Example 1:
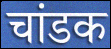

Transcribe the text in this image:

चांडक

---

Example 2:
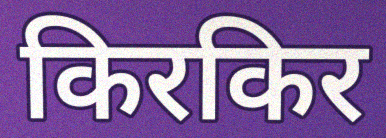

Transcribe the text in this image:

किरकिर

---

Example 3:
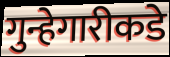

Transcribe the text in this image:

गुन्हेगारीकडे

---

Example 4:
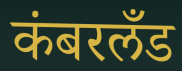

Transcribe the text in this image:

कंबरलँड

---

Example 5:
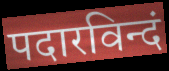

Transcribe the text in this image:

पदारविन्दं